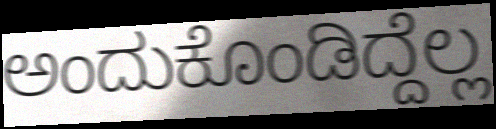
ಅಂದುಕೊಂಡಿದ್ದೆಲ್ಲ